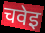
चवेइ